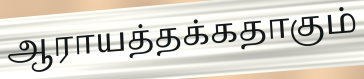
ஆராயத்தக்கதாகும்